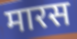
मारस